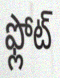
ఫ్లోట్